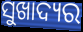
ସୁଖାଦ୍ୟର